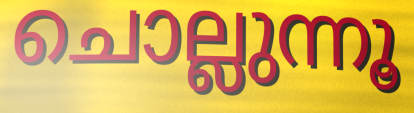
ചൊല്ലുന്നൂ